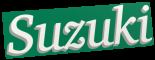
Suzuki